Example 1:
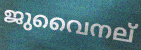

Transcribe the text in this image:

ജുവൈനല്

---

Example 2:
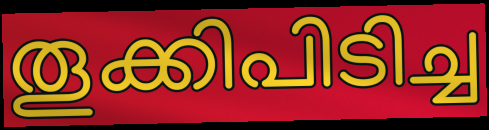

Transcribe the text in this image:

തൂക്കിപിടിച്ച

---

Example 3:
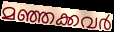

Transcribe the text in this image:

മഞ്ഞക്കവർ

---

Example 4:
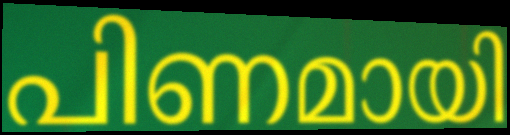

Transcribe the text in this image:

പിണമായി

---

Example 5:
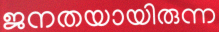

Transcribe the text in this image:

ജനതയായിരുന്ന